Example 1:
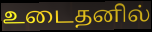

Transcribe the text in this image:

உடைதனில்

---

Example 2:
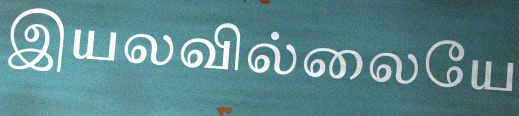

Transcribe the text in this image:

இயலவில்லையே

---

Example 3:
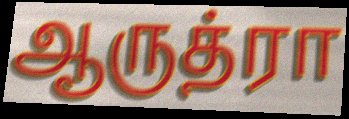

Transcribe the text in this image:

ஆருத்ரா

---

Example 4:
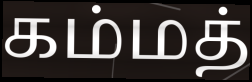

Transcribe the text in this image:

கம்மத்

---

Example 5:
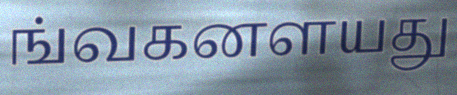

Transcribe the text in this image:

ங்வகனளயது